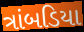
ત્રાંબડિયા